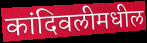
कांदिवलीमधील